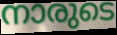
നാരുടെ